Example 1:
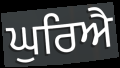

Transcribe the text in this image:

ਘੁਰਿਐ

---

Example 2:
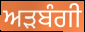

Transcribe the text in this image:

ਅੜਬੰਗੀ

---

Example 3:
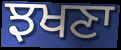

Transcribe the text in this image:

ਝਖਣਾ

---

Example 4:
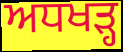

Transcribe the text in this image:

ਅਧਖੜ੍ਹ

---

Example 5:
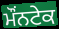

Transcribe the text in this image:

ਮੌਂਨਟੇਕ